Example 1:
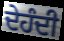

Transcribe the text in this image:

ਦੇਹੰਦੀ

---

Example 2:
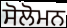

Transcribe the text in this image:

ਸੋਲੋਮਨ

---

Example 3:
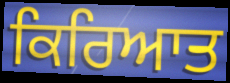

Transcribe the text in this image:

ਕਿਰਿਆਤ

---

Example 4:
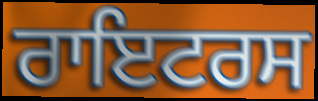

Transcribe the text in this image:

ਰਾਇਟਰਸ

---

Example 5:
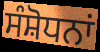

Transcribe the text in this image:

ਸੰਸ਼ੋਧਨਾਂ